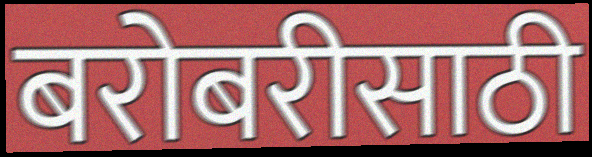
बरोबरीसाठी